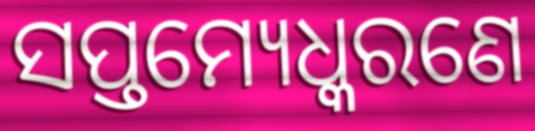
ସପ୍ତମ୍ୟେଧ୍କରଣେ